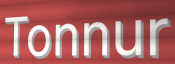
Tonnur